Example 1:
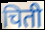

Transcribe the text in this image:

चिती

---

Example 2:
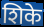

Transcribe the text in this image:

शिके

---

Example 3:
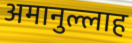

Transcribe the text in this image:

अमानुल्लाह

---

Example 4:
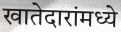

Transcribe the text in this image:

खातेदारांमध्ये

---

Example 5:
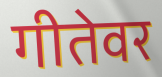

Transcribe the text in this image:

गीतेवर